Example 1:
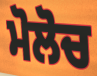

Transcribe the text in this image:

ਮੋਲੋਚ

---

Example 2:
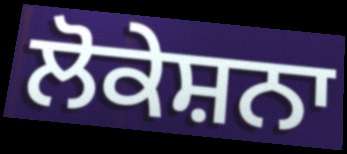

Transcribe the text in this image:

ਲੋਕੇਸ਼ਨਾ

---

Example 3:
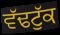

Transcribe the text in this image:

ਵੱਢਟੁੱਕ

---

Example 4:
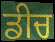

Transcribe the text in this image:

ਡੀਚ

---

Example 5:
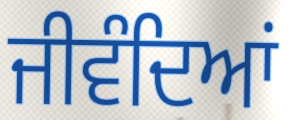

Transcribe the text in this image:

ਜੀਵੰਦਿਆਂ